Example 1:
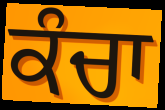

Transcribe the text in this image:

ਕੰਚਾ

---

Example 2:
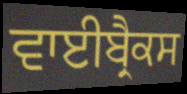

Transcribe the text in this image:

ਵਾਈਬ੍ਰੈਕਸ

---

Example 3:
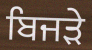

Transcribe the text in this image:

ਬਿਜੜੇ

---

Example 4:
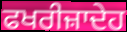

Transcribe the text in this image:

ਫਖਰੀਜ਼ਾਦੇਹ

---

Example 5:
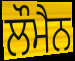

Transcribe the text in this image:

ਲੌਮੈਨ